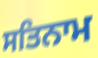
ਸਤਿਨਾਮ